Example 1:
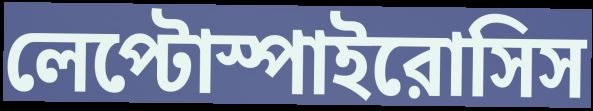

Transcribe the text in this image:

লেপ্টোস্পাইরোসিস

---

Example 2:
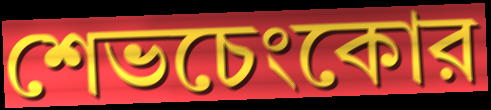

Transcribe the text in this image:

শেভচেংকোর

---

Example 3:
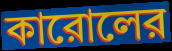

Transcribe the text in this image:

কারোলের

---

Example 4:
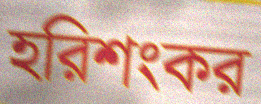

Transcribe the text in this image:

হরিশংকর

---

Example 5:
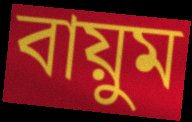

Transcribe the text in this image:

বায়ুম